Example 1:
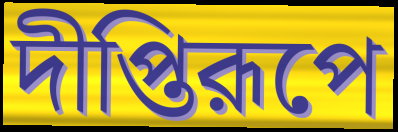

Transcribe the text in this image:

দীপ্তিরূপে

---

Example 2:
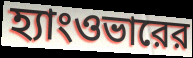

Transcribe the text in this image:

হ্যাংওভারের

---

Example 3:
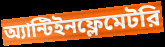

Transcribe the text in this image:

অ্যান্টিইনফ্লেমেটরি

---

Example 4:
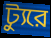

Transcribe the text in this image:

ট্যুরে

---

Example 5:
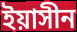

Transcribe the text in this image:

ইয়াসীন